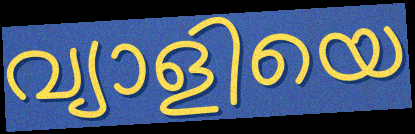
വ്യാളിയെ